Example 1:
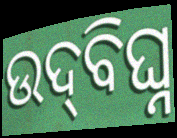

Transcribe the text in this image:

ଉଦ୍‌ବିଘ୍ନ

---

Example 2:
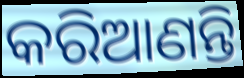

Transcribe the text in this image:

କରିଆଣନ୍ତି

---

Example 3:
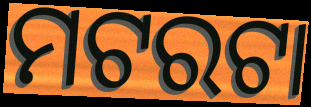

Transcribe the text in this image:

ମଟରଟା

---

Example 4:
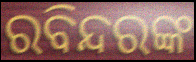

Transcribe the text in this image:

ରବିନ୍ଦରଙ୍କ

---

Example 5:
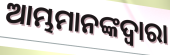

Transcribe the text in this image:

ଆମ୍ଭମାନଙ୍କଦ୍ୱାରା